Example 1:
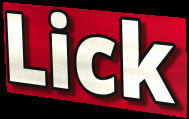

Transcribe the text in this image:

Lick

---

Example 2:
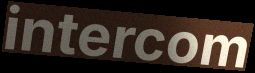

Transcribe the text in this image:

intercom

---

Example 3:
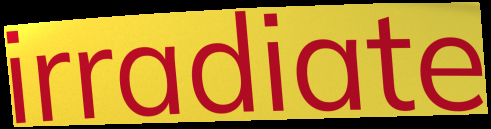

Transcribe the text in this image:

irradiate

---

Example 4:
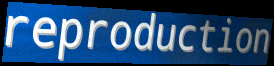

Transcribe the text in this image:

reproduction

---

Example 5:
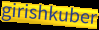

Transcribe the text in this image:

girishkuber